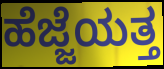
ಹೆಜ್ಜೆಯತ್ತ